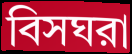
বিসঘরা